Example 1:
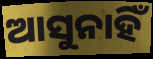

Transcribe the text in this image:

ଆସୁନାହିଁ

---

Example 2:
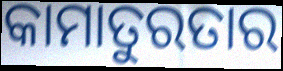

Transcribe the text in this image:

କାମାତୁରତାର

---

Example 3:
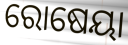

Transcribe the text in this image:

ରୋଷେୟା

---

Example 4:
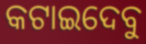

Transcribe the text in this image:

କଟାଇଦେବୁ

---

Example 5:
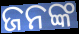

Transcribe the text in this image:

ଜନଙ୍କ